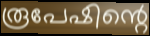
രൂപേഷിന്റെ